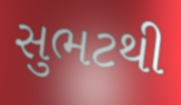
સુભટથી